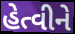
હેત્વીને